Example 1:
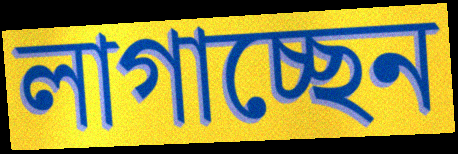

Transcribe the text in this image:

লাগাচ্ছেন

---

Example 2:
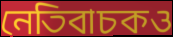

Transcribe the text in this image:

নেতিবাচকও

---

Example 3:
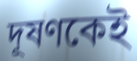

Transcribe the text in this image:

দূষণকেই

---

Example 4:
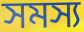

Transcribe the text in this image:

সমস্য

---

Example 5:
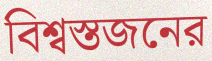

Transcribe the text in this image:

বিশ্বস্তজনের